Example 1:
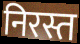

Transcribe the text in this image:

निरस्त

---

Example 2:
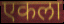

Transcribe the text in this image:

एकला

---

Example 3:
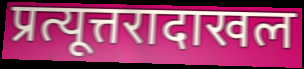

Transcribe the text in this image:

प्रत्यूत्तरादाखल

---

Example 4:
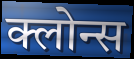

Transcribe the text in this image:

क्लोन्स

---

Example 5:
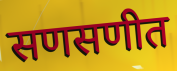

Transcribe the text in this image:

सणसणीत